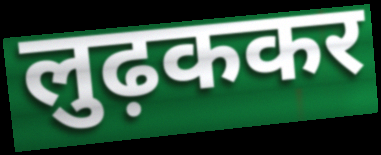
लुढ़ककर